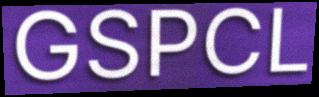
GSPCL